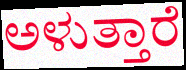
ಅಳುತ್ತಾರೆ